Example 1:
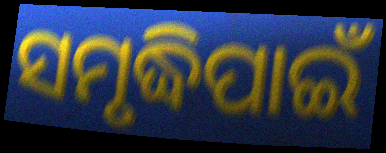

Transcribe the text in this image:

ସମୃଦ୍ଧିପାଇଁ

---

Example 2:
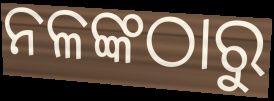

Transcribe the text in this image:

ନଳଙ୍କଠାରୁ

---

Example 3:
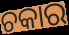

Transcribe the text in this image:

ଚକାର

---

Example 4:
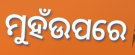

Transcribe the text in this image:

ମୁହଁଉପରେ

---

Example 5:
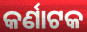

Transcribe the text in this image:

କର୍ଣାଟକ